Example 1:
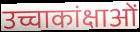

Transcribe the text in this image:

उच्चाकांक्षाओं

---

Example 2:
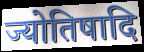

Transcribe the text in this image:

ज्योतिषादि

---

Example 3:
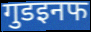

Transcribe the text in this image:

गुडइनफ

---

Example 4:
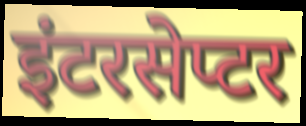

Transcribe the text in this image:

इंटरसेप्टर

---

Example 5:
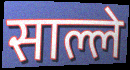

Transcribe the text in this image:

साल्ले